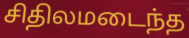
சிதிலமடைந்த